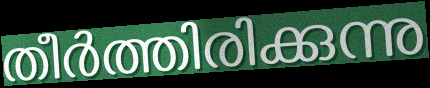
തീർത്തിരിക്കുന്നു